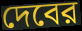
দেবের